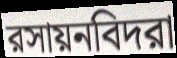
রসায়নবিদরা